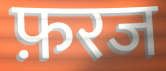
फ़रज